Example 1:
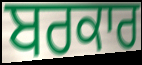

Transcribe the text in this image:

ਬਰਕਾਰ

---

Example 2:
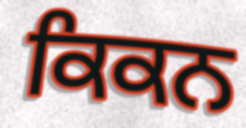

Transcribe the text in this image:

ਕਿਕਨ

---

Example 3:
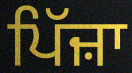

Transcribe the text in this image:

ਪਿੱਜ਼ਾ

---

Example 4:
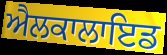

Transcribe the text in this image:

ਐਲਕਾਲਾਇਡ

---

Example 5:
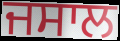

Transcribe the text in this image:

ਜਸਾਲ